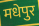
मधेपुर